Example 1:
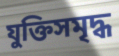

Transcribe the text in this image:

যুক্তিসমৃদ্ধ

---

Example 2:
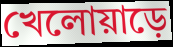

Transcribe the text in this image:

খেলোয়াড়ে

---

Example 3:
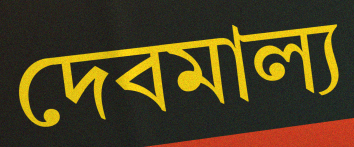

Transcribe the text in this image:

দেবমাল্য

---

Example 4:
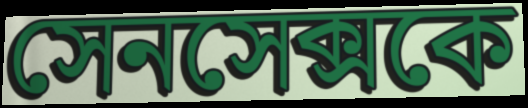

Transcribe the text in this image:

সেনসেক্সকে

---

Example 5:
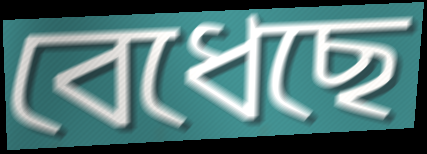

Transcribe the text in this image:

বেধেছে